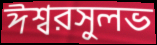
ঈশ্বরসুলভ